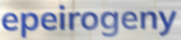
epeirogeny